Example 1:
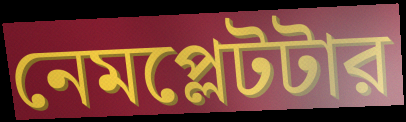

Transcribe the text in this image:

নেমপ্লেটটার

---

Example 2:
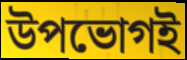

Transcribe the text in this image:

উপভোগই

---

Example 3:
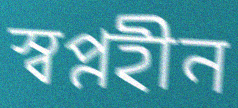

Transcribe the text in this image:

স্বপ্নহীন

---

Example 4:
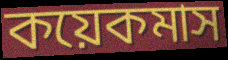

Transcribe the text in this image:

কয়েকমাস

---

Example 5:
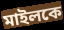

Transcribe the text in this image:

মাইলকে